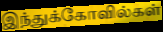
இந்துக்கோவில்கள்